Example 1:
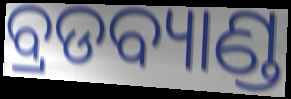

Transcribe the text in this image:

ବ୍ରଡବ୍ୟାଣ୍ଡ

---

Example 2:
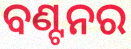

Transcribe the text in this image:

ବଣ୍ଟନର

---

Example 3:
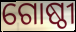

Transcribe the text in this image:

ଗୋଷ୍ଠୀ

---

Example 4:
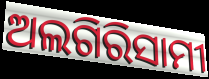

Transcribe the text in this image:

ଅଲଗିରିସାମୀ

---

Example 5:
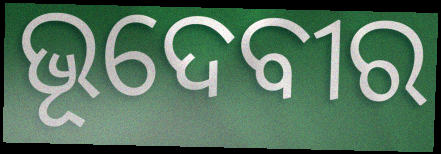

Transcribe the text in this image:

ଭୂଦେବୀର